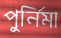
পুর্নিমা